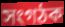
সংগঠক